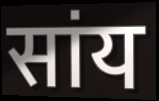
सांय